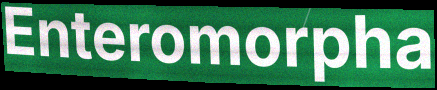
Enteromorpha